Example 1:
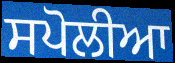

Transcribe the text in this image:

ਸਪੋਲੀਆ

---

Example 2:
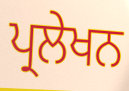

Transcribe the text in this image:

ਪ੍ਰਲੇਖਨ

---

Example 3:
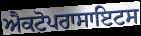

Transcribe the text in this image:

ਐਕਟੋਪਰਾਸਾਇਟਸ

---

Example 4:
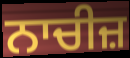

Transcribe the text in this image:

ਨਾਚੀਜ਼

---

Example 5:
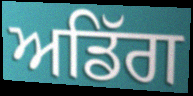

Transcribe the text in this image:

ਅਡਿੱਗ